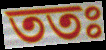
ততঃ